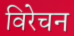
विरेचन